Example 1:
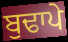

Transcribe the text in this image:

ਬੁਢਾਪੇ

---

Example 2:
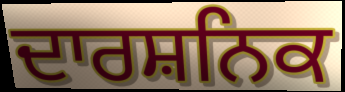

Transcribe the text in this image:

ਦਾਰਸ਼ਨਿਕ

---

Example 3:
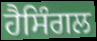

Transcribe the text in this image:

ਹੈਸਿੰਗਲ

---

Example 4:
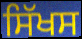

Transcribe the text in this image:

ਸਿੱਖਸ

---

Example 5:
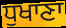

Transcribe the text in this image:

ਧੁਖਾਣਾ